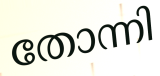
തോന്നി